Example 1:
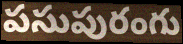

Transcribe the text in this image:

పసుపురంగు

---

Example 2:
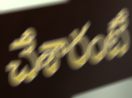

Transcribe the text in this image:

చేశారంటే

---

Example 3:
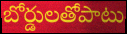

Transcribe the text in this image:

బోర్డులతోపాటు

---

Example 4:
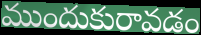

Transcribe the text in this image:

ముందుకురావడం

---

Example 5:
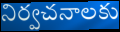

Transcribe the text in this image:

నిర్వచనాలకు